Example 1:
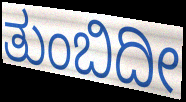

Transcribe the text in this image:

ತುಂಬಿದೀ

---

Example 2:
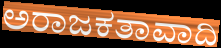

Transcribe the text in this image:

ಅರಾಜಕತಾವಾದಿ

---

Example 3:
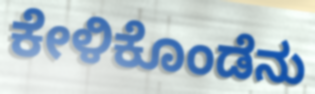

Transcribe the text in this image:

ಕೇಳಿಕೊಂಡೆನು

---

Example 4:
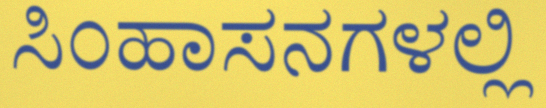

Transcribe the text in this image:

ಸಿಂಹಾಸನಗಳಲ್ಲಿ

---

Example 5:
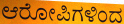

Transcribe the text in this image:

ಆರೋಪಿಗಳಿಂದ